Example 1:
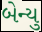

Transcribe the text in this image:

બેન્યુ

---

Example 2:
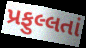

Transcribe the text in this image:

પ્રફુલ્લતાં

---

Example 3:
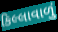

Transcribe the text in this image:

કિલ્લાવાળું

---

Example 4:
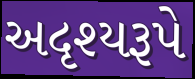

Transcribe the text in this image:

અદૃશ્યરૂપે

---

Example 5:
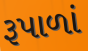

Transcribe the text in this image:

રૂપાળાં